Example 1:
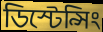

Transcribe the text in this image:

ডিস্টেন্সিং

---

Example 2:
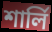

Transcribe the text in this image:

শার্লি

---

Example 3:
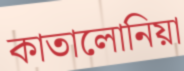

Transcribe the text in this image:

কাতালোনিয়া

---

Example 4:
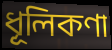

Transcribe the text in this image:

ধূলিকণা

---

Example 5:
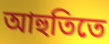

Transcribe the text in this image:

আহুতিতে